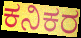
ಕನಿಕರ